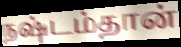
நஷ்டம்தான்